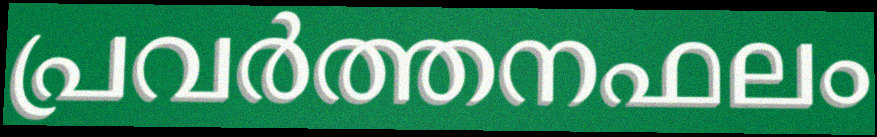
പ്രവർത്തനഫലം